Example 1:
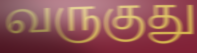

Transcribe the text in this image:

வருகுது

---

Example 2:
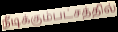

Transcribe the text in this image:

நீடிக்கும்பட்சத்தில்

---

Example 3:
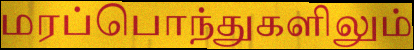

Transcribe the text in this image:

மரப்பொந்துகளிலும்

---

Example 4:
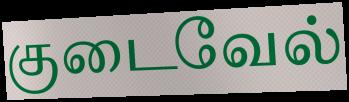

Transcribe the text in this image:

குடைவேல்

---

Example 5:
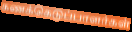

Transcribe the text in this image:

கணக்கெடுப்பாளர்கள்